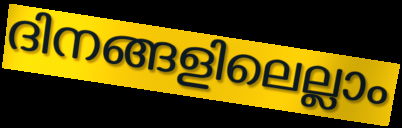
ദിനങ്ങളിലെല്ലാം